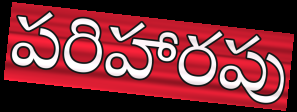
పరిహారపు